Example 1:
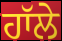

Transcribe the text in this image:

ਹਾੱਲੇ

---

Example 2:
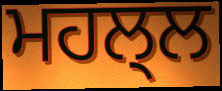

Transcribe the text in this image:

ਮਹਲ੍ਲ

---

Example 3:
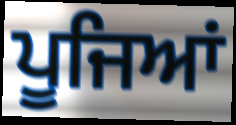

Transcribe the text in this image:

ਪੂਜਿਆਂ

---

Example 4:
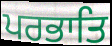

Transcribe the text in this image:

ਪਰਭਾਤਿ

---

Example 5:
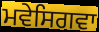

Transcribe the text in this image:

ਮਵੇਸਿਗਵਾ